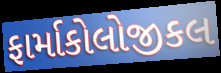
ફાર્માકોલોજીકલ